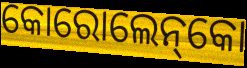
କୋରୋଲେନ୍‌କୋ